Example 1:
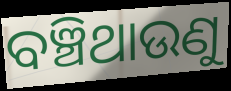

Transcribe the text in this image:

ବଞ୍ଚିଥାଉଣୁ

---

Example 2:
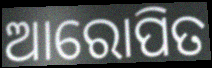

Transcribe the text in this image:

ଆରୋପିତ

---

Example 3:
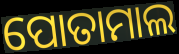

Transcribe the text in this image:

ପୋତାମାଲ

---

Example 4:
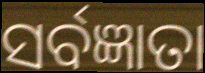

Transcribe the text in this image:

ସର୍ବଜ୍ଞାତା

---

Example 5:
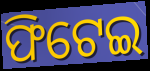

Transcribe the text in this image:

ଫିଟେଇ